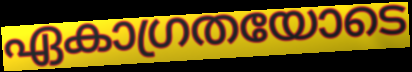
ഏകാഗ്രതയോടെ